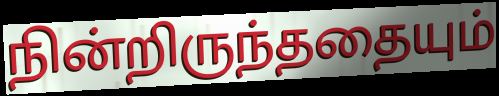
நின்றிருந்ததையும்